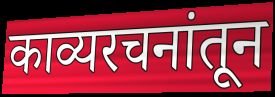
काव्यरचनांतून